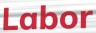
Labor